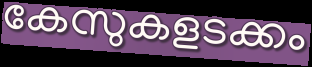
കേസുകളടക്കം